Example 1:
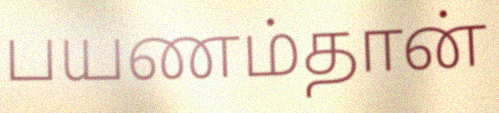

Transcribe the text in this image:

பயணம்தான்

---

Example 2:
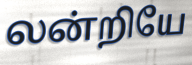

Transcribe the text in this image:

லன்றியே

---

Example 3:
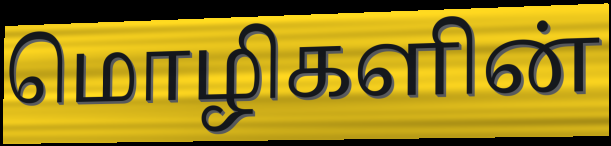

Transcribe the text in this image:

மொழிகளின்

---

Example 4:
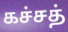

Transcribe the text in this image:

கச்சத்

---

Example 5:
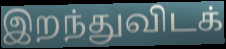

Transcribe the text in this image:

இறந்துவிடக்